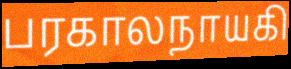
பரகாலநாயகி